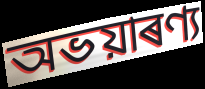
অভয়াৰণ্য